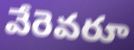
వేరెవరూ